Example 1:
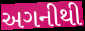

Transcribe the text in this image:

અગનીથી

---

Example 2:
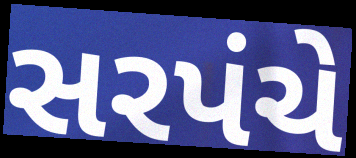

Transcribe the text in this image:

સરપંચે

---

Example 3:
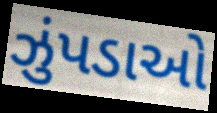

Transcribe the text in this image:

ઝુંપડાઓ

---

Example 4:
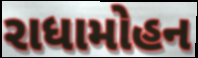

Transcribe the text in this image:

રાધામોહન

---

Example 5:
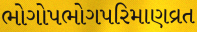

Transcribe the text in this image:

ભોગોપભોગપરિમાણવ્રત